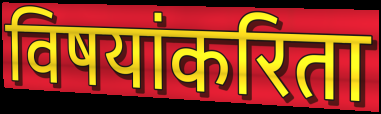
विषयांकरिता